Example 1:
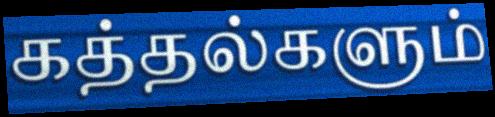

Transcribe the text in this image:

கத்தல்களும்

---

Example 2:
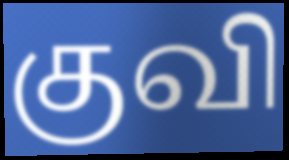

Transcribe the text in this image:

குவி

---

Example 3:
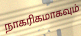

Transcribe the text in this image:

நாகரிகமாகவும்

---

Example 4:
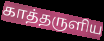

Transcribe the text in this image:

காத்தருளிய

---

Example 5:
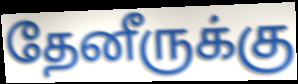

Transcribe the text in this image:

தேனீருக்கு